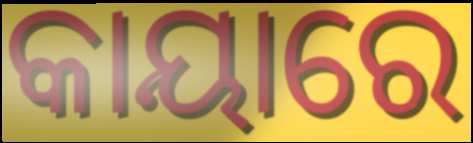
କାୟାରେ